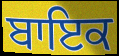
ਬਾਇਕ